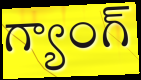
గ్యాంగ్